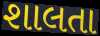
શાલતા